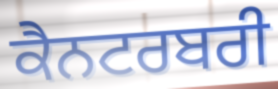
ਕੈਨਟਰਬਰੀ